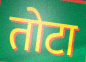
तोटा